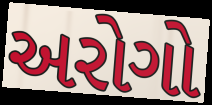
અરોગો